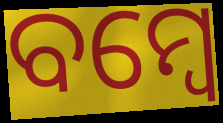
ବମ୍ୱେ